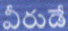
వీరుడే